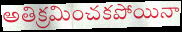
అతిక్రమించకపోయినా